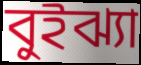
বুইঝ্যা